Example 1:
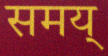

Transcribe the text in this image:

समय्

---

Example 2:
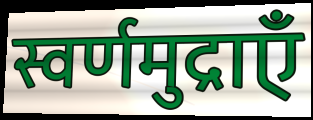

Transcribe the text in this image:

स्वर्णमुद्राएँ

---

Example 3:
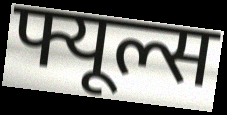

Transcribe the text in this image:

फ्यूल्स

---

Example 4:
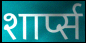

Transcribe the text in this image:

शार्प्स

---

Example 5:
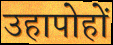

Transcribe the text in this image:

उहापोहों